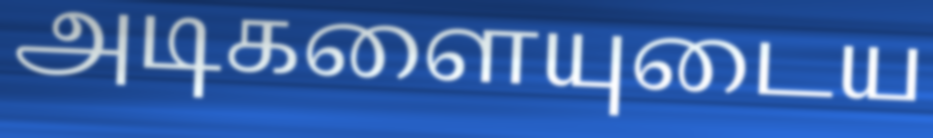
அடிகளையுடைய